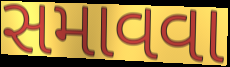
સમાવવા